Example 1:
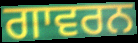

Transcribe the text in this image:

ਗਾਵਰਨ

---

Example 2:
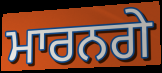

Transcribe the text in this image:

ਮਾਰਨਗੇ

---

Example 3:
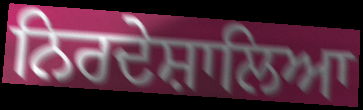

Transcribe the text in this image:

ਨਿਰਦੇਸ਼ਾਲਿਆ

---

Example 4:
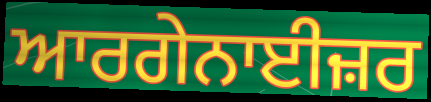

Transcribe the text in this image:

ਆਰਗੇਨਾਈਜ਼ਰ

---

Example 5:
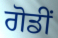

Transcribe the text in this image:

ਗੋਡੀਂ